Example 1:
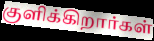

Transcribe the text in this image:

குளிக்கிறார்கள்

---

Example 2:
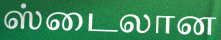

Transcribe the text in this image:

ஸ்டைலான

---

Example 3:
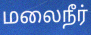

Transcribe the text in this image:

மலைநீர்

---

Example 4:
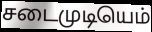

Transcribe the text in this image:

சடைமுடியெம்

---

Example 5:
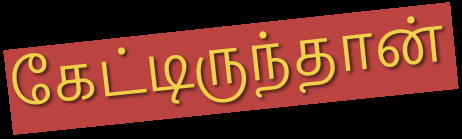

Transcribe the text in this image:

கேட்டிருந்தான்